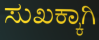
ಸುಖಕ್ಕಾಗಿ